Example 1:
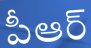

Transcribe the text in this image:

పీఆర్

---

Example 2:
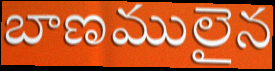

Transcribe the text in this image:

బాణములైన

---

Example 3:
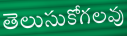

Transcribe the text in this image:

తెలుసుకోగలవు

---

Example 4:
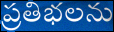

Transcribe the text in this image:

ప్రతిభలను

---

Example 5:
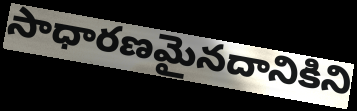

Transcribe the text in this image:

సాధారణమైనదానికిని